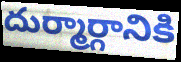
దుర్మార్గానికి